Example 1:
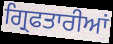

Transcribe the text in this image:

ਗ੍ਰਿਫਤਾਰੀਆਂ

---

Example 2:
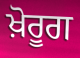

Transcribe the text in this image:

ਖ਼ੋਰੂਗ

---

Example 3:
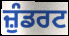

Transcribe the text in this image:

ਜ਼ੁੰਡਰਟ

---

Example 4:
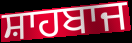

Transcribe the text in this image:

ਸ਼ਾਹਬਾਜ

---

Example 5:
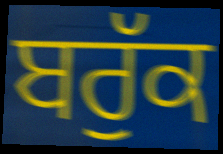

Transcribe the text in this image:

ਬਰੁੱਕ